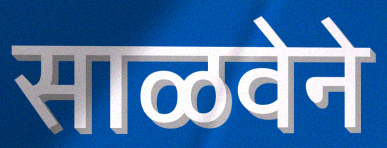
साळवेने